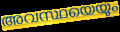
അവസ്ഥയെയും